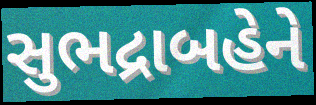
સુભદ્રાબહેને